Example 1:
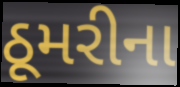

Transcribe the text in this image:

ઠૂમરીના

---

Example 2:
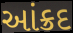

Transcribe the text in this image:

આંક્રદ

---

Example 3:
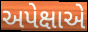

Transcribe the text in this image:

અપેક્ષાએ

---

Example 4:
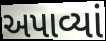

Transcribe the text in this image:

અપાવ્યાં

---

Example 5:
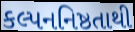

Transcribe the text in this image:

કલ્પનનિષ્ઠતાથી